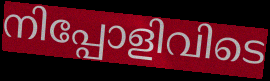
നിപ്പോളിവിടെ